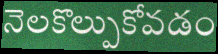
నెలకొల్పుకోవడం